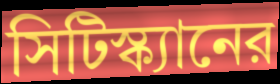
সিটিস্ক্যানের